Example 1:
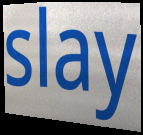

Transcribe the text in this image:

slay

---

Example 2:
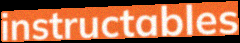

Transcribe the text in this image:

instructables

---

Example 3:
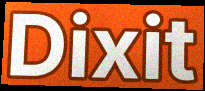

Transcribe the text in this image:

Dixit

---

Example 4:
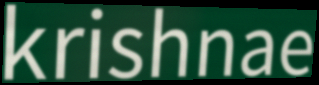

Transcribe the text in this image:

krishnae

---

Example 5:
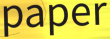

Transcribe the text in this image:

paper